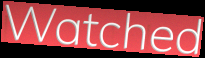
Watched